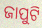
ଜାପୁଟି